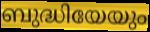
ബുദ്ധിയേയും